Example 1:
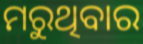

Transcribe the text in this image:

ମରୁଥିବାର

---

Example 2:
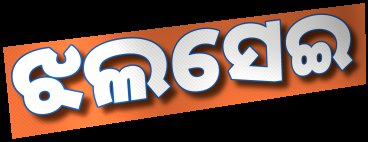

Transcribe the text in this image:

ଝଲସେଇ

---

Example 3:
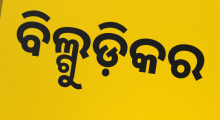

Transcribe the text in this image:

ବିଲ୍ଗୁଡ଼ିକର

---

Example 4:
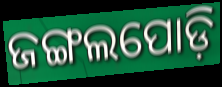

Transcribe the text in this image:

ଜଙ୍ଗଲପୋଡ଼ି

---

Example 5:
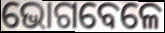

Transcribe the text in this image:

ଭୋଗବେଳେ